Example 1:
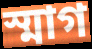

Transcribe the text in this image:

স্মাগ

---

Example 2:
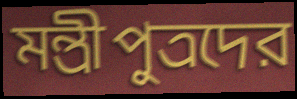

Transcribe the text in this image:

মন্ত্রীপুত্রদের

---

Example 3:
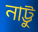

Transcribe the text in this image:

নাট্টু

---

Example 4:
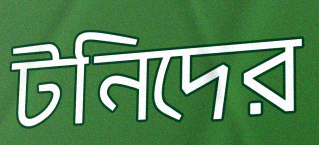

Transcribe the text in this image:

টনিদের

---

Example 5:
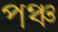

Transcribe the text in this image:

পঞ্চ